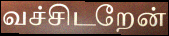
வச்சிடறேன்